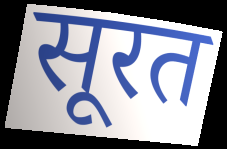
सूरत